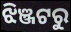
ଝିଞ୍ଜଟରୁ